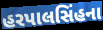
હરપાલસિંહના